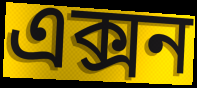
এক্সন